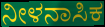
ನೀಳನಾಸಿಕ